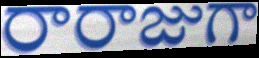
రారాజుగా